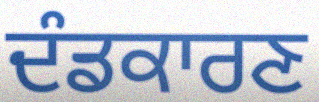
ਦੰਡਕਾਰਣ